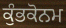
ਕੁੰਭਕੋਨਮ